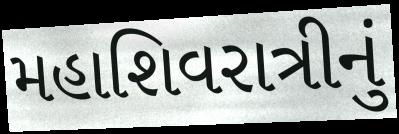
મહાશિવરાત્રીનું